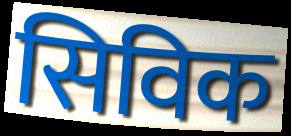
सिविक